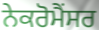
ਨੇਕਰੋਮੈਂਸਰ